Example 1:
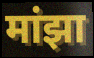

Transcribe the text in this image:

मांझा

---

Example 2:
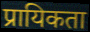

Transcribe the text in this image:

प्रायिकता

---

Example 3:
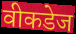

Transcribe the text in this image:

वीकडेज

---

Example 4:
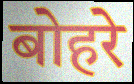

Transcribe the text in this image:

बोहरे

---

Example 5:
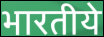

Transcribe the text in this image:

भारतीये